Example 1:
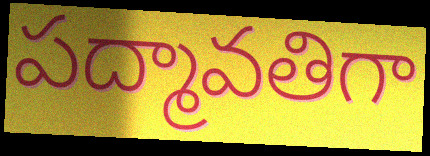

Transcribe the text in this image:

పద్మావతిగా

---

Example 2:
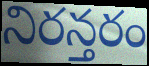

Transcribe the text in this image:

నిరన్తరం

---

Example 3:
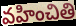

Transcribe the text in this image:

వహించితి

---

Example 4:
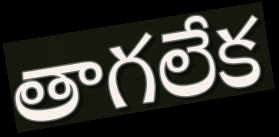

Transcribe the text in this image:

తాగలేక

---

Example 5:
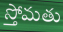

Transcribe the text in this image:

స్తోమతు